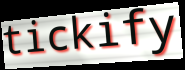
tickify